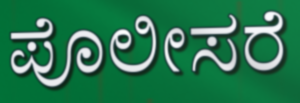
ಪೊಲೀಸರೆ